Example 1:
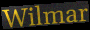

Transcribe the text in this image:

Wilmar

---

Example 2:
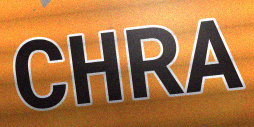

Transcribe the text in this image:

CHRA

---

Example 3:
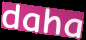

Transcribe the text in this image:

daha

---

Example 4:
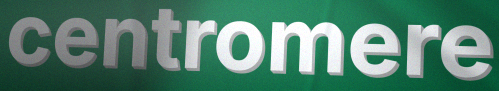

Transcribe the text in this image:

centromere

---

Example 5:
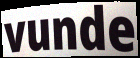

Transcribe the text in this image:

vunde